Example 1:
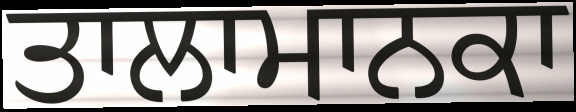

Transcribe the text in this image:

ਤਾਲਾਮਾਨਕਾ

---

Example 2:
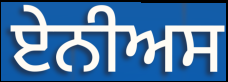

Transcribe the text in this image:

ਏਨੀਅਸ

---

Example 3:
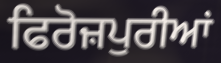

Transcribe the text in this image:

ਫਿਰੋਜ਼ਪੁਰੀਆਂ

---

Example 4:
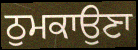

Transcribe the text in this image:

ਠੁਮਕਾਉਣਾ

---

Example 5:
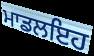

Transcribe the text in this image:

ਮਾਡਲਇਹ